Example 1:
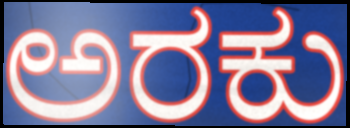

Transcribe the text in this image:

ಅರಕು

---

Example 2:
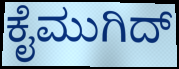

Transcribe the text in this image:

ಕೈಮುಗಿದ್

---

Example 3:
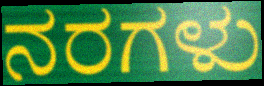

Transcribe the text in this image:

ನರಗಳು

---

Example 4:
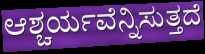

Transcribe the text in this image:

ಆಶ್ಚರ್ಯವೆನ್ನಿಸುತ್ತದೆ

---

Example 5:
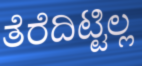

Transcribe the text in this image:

ತೆರೆದಿಟ್ಟಿಲ್ಲ